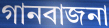
গানবাজনা